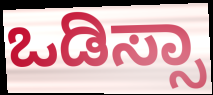
ಒಡಿಸ್ಸಾ